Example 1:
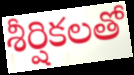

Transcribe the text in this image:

శీర్షికలతో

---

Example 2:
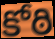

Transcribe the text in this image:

కోఠి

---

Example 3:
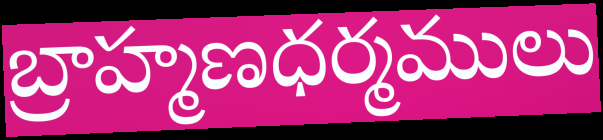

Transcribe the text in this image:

బ్రాహ్మణధర్మములు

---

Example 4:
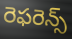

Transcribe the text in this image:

రెఫరెన్స్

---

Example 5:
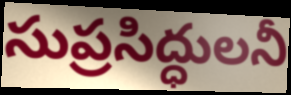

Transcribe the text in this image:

సుప్రసిద్ధులనీ